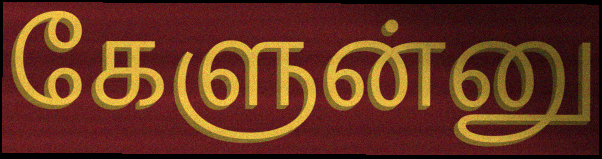
கேளுன்னு